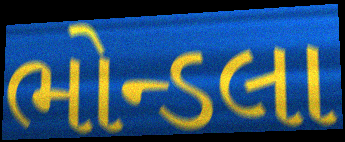
ભોન્ડલા